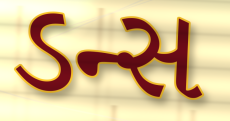
ડન્સ